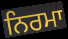
ਨਿਰਮਾ